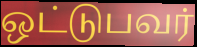
ஒட்டுபவர்